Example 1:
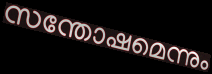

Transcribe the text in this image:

സന്തോഷമെന്നും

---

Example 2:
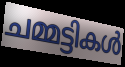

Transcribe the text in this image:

ചമ്മട്ടികൾ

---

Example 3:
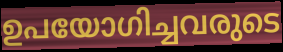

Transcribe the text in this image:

ഉപയോഗിച്ചവരുടെ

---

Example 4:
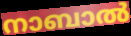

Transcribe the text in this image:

നാബാൽ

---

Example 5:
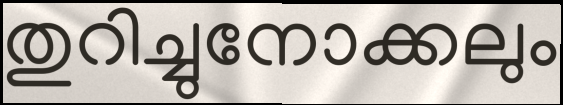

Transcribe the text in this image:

തുറിച്ചുനോക്കലും